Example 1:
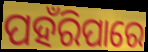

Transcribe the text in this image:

ପହଁରିପାରେ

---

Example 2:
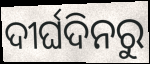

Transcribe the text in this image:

ଦୀର୍ଘଦିନରୁ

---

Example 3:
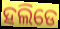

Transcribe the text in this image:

ହଲିଡେ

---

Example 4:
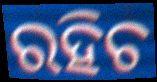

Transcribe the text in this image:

ରହିଚ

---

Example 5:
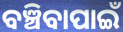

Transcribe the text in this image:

ବଞ୍ଚିବାପାଇଁ